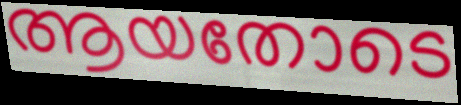
ആയതോടെ